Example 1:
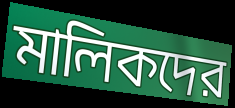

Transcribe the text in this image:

মালিকদের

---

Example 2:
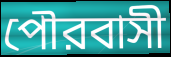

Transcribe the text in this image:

পৌরবাসী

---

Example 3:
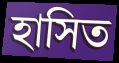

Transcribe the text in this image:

হাসিত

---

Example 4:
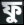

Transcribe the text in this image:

ফু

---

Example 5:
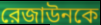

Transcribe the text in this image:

রেজাউনকে